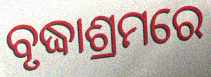
ବୃଦ୍ଧାଶ୍ରମରେ